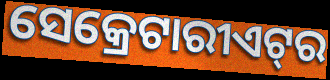
ସେକ୍ରେଟାରୀଏଟ୍‍ର